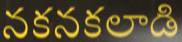
నకనకలాడి